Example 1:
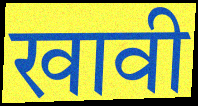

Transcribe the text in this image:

खावी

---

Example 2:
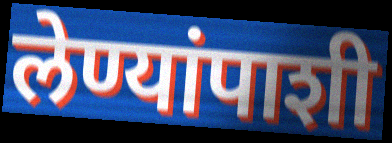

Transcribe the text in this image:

लेण्यांपाशी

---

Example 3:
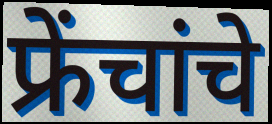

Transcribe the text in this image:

फ्रेंचांचे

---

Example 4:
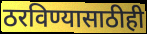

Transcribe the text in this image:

ठरविण्यासाठीही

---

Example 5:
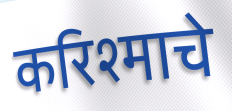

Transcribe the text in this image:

करिश्माचे